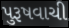
પુરૂષવાચી